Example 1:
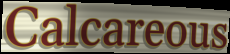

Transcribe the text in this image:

Calcareous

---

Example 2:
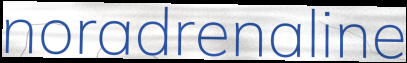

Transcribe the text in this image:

noradrenaline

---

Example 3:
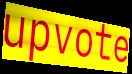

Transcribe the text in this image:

upvote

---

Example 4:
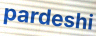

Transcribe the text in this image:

pardeshi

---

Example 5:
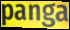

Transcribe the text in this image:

panga